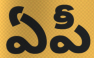
ఏపీ